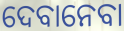
ଦେବାନେବା